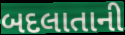
બદલાતાની